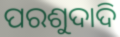
ପରଶୁଦାଦି